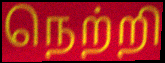
நெற்றி